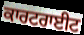
ਕਾਰਟਰਾਈਟ